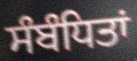
ਸੰਬੰਧਿਤਾਂ